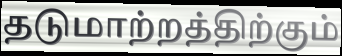
தடுமாற்றத்திற்கும்